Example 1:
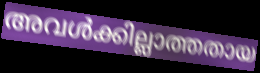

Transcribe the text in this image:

അവൾക്കില്ലാത്തതായ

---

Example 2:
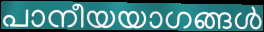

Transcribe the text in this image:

പാനീയയാഗങ്ങൾ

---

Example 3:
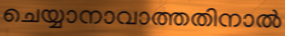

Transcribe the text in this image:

ചെയ്യാനാവാത്തതിനാൽ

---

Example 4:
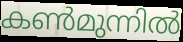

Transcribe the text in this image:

കൺമുന്നിൽ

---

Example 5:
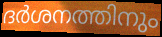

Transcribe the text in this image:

ദർശനത്തിനും